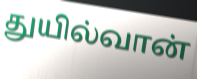
துயில்வான்